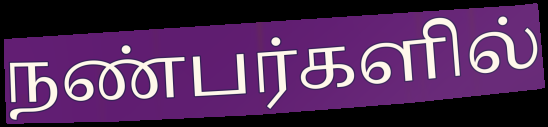
நண்பர்களில்